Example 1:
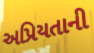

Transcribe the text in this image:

અપ્રિયતાની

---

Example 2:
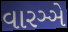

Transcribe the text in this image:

વારઞ્ઞે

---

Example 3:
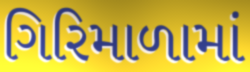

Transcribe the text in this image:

ગિરિમાળામાં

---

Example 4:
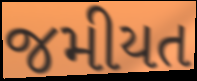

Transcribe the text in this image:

જમીયત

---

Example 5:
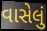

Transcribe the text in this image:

વાસેલું